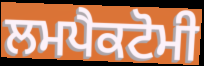
ਲਮਪੈਕਟੋਮੀ